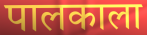
पालकाला